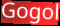
Gogol